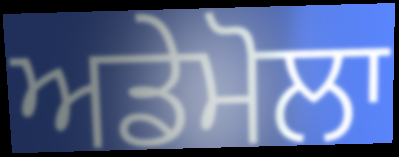
ਅਡੇਮੋਲਾ